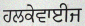
ਹਲਕੇਵਾਈਜ